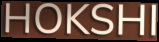
HOKSHI